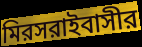
মিরসরাইবাসীর